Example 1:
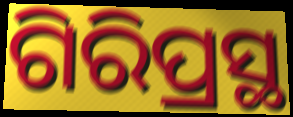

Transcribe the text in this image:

ଗିରିପ୍ରସ୍ଥ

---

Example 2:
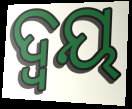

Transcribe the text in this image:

ଦ୍ୱୟ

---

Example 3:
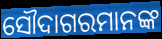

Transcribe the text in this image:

ସୌଦାଗରମାନଙ୍କ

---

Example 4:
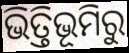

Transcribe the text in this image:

ଭିତ୍ତିଭୂମିରୁ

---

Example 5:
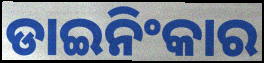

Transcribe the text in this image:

ଡାଇନିଂକାର